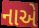
નાએ